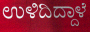
ಉಳಿದಿದ್ದಾಳೆ